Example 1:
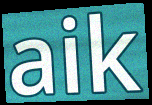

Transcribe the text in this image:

aik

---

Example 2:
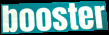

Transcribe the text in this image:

booster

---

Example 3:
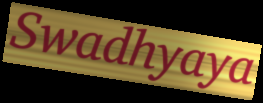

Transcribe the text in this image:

Swadhyaya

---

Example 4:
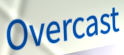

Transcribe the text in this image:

Overcast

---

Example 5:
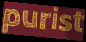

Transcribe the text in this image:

purist